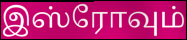
இஸ்ரோவும்